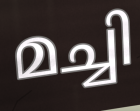
മച്ചി